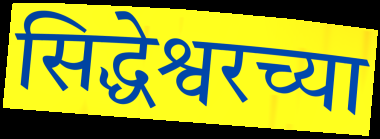
सिद्धेश्वरच्या